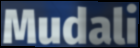
Mudali